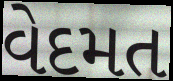
વેદમત